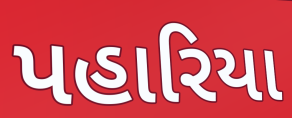
પહારિયા